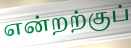
என்றற்குப்